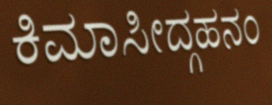
ಕಿಮಾಸೀದ್ಗಹನಂ